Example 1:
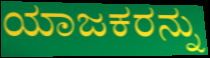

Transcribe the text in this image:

ಯಾಜಕರನ್ನು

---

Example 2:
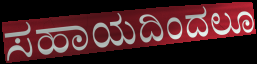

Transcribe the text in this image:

ಸಹಾಯದಿಂದಲೂ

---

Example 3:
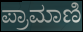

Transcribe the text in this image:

ಪ್ರಾಮಾಣಿ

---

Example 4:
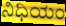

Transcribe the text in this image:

ನಿಧಿಯಂ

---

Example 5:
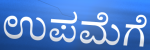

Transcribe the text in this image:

ಉಪಮೆಗೆ